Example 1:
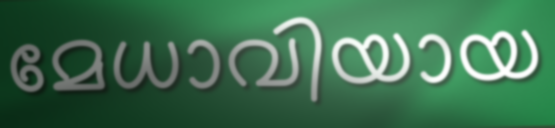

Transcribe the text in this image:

മേധാവിയായ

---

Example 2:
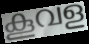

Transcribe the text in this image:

കൂവള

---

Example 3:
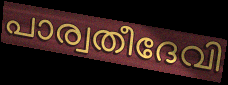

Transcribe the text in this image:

പാര്വതീദേവി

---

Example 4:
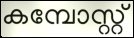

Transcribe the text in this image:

കമ്പോസ്റ്റ്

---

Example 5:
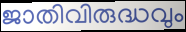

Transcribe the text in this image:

ജാതിവിരുദ്ധവും